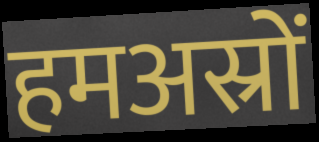
हमअस्रों